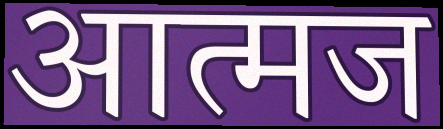
आत्मज